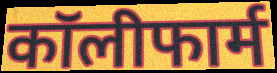
कॉलीफार्म